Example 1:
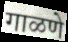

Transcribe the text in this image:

गाळणे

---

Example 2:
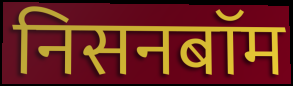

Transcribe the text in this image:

निसनबॉम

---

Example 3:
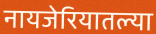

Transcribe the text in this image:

नायजेरियातल्या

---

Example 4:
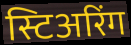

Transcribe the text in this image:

स्टिअरिंग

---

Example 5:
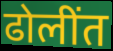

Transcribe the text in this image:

ढोलींत